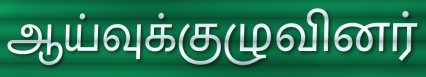
ஆய்வுக்குழுவினர்